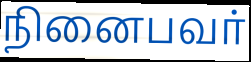
நினைபவர்